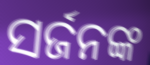
ସର୍ଜନଙ୍କ